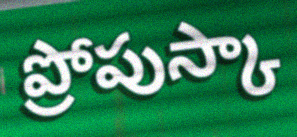
ప్రోపుస్కా